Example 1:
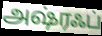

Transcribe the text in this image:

அஷ்ரஃப்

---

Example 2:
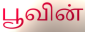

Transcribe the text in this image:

பூவின்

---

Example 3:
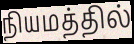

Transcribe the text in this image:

நியமத்தில்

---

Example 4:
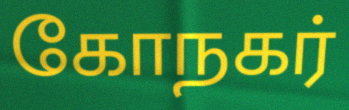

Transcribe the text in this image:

கோநகர்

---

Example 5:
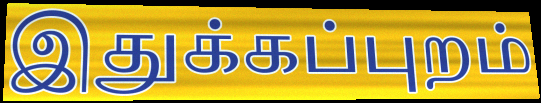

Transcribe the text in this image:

இதுக்கப்புறம்